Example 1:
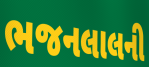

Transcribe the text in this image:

ભજનલાલની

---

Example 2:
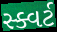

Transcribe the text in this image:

સ્ક્વર્ટ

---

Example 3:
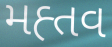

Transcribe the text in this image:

મહ્તવ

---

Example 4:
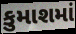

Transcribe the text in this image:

કુમાશમાં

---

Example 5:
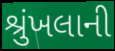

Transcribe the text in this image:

શ્રુંખલાની